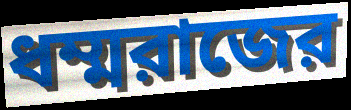
ধম্মরাজের